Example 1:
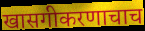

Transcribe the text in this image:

खासगीकरणाचाच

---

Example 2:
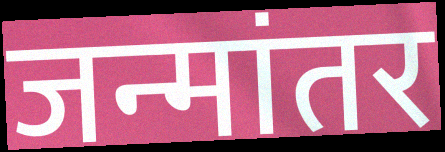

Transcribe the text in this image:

जन्मांतर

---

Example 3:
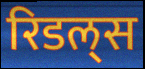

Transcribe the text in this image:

रिडल्स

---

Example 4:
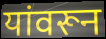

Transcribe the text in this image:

यांवरून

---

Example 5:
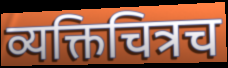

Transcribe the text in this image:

व्यक्तिचित्रच